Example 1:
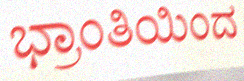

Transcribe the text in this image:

ಭ್ರಾಂತಿಯಿಂದ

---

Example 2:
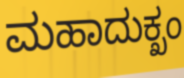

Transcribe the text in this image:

ಮಹಾದುಕ್ಖಂ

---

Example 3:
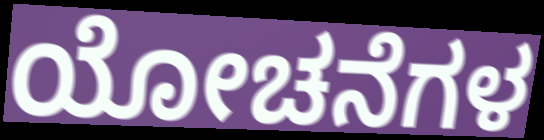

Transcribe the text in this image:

ಯೋಚನೆಗಳ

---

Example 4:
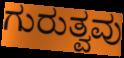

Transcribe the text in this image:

ಗುರುತ್ವವು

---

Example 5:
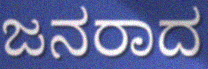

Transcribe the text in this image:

ಜನರಾದ